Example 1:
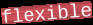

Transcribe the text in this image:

flexible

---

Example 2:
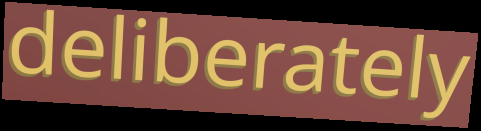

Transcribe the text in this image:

deliberately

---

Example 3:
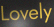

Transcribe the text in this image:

Lovely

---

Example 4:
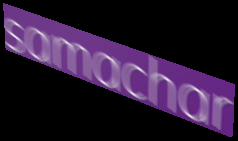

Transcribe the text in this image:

samachar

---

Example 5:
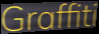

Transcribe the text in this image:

Graffiti